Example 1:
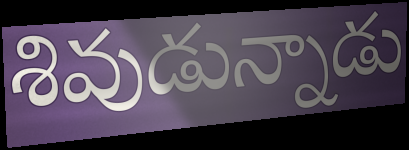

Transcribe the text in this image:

శివుడున్నాడు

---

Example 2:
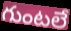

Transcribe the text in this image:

గుంటలే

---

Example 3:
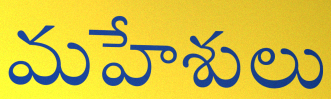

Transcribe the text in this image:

మహేశులు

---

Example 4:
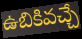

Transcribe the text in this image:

ఉబికివచ్చే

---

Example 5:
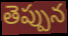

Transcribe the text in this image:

తెప్పున